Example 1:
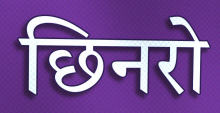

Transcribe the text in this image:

छिनरो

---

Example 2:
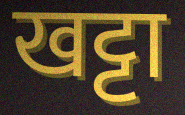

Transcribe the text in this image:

खट्टा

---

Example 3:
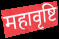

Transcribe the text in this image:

महावृष्टि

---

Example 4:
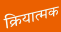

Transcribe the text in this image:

क्रियात्‍मक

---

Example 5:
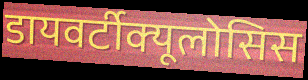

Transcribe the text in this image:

डायवर्टीक्यूलोसिस